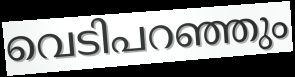
വെടിപറഞ്ഞും